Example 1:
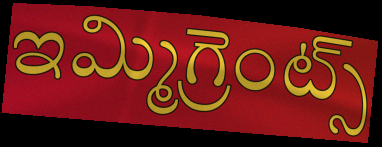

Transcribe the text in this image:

ఇమ్మిగ్రెంట్స్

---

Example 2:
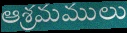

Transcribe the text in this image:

ఆశ్రమములు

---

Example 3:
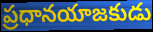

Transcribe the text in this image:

ప్రధానయాజకుడు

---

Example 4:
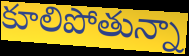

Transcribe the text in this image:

కూలిపోతున్నా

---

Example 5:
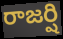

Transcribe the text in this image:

రాజర్షి